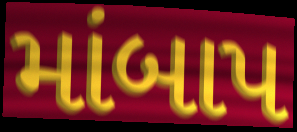
માંબાપ